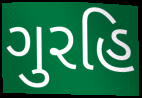
ગુરહિ